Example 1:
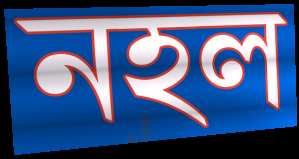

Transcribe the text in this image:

নহল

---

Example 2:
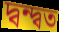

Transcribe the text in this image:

দ্বন্দ্বত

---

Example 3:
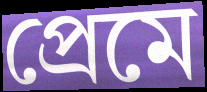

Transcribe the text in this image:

প্ৰেমে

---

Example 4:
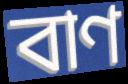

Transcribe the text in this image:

বাণ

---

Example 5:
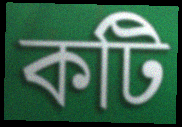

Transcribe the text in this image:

কটি